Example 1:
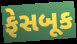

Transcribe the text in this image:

ફેસબૂક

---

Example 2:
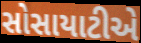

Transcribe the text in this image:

સોસાયાટીએ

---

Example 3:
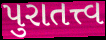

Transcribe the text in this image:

પુરાતત્ત્વ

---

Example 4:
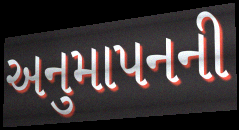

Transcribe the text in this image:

અનુમાપનની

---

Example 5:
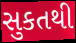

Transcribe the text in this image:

સુકતથી